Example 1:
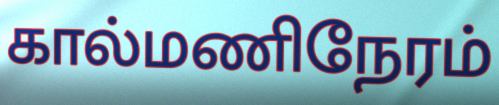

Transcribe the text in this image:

கால்மணிநேரம்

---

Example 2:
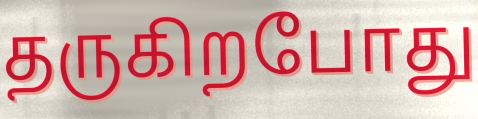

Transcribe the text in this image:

தருகிறபோது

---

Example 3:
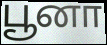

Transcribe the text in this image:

பூனா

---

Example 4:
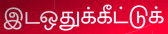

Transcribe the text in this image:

இடஒதுக்கீட்டுக்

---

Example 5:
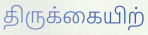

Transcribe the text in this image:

திருக்கையிற்